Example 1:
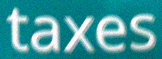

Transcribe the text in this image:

taxes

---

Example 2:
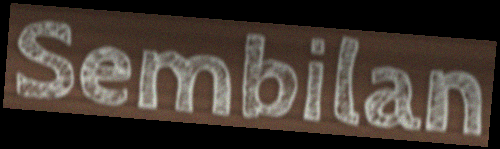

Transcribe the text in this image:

Sembilan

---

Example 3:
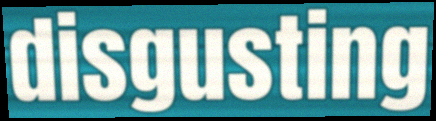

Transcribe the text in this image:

disgusting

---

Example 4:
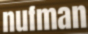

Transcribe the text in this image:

nufman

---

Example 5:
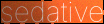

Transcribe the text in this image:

sedative